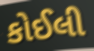
કોઈલી